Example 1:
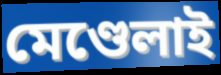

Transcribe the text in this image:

মেণ্ডেলাই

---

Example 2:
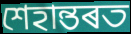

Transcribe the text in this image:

শেহান্তৰত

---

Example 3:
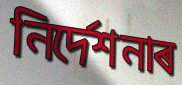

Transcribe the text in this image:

নিৰ্দেশনাৰ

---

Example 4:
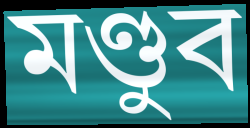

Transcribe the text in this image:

মণ্ডুব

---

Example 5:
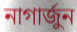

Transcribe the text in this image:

নাগাৰ্জুন